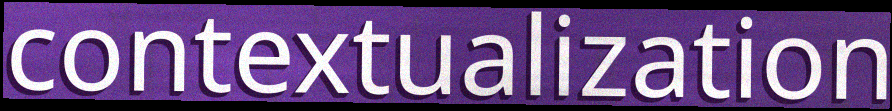
contextualization